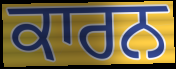
ਕਾਰਨ